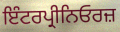
ਇੰਟਰਪ੍ਰੀਨਿਓਰਜ਼